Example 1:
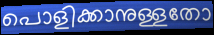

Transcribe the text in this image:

പൊളിക്കാനുള്ളതോ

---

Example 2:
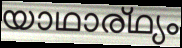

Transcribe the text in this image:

യാഥാര്ഥ്യം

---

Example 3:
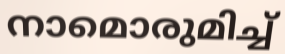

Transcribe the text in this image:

നാമൊരുമിച്ച്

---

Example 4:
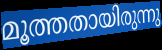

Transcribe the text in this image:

മൂത്തതായിരുന്നു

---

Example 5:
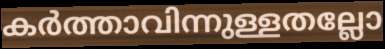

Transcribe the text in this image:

കർത്താവിന്നുള്ളതല്ലോ